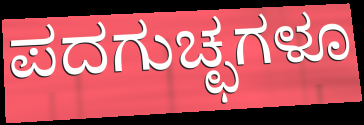
ಪದಗುಚ್ಛಗಳೂ